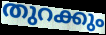
തുറക്കും